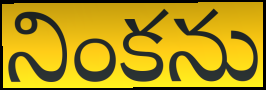
నింకను